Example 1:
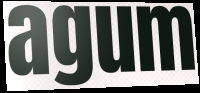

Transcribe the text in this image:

agum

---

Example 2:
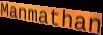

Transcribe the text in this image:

Manmathan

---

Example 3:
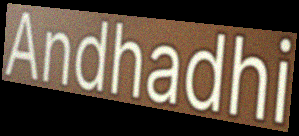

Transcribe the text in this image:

Andhadhi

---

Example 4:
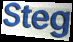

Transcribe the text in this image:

Steg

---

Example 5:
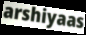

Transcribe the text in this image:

arshiyaas